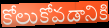
కోలుకోవడానికి